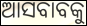
ଆସବାବକୁ